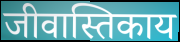
जीवास्तिकाय